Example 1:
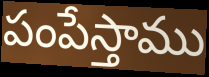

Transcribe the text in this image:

పంపేస్తాము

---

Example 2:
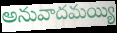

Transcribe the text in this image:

అనువాదమయ్యి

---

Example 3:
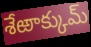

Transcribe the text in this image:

శేఱాక్కుమ్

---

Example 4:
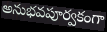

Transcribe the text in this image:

అనుభవపూర్వకంగా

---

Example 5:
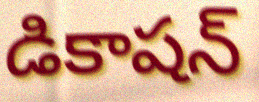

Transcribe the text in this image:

డికాషన్